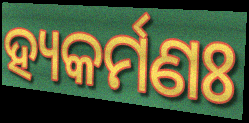
ହ୍ୟକର୍ମଣଃ